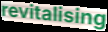
revitalising